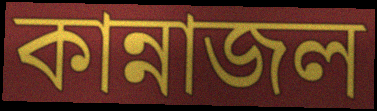
কান্নাজল